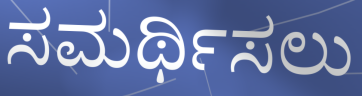
ಸಮರ್ಥಿಸಲು